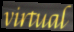
virtual